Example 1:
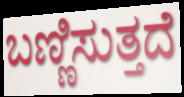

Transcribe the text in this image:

ಬಣ್ಣಿಸುತ್ತದೆ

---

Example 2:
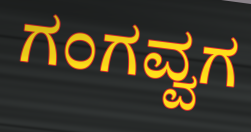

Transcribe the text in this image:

ಗಂಗವ್ವಗ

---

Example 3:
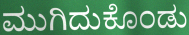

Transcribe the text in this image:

ಮುಗಿದುಕೊಂಡು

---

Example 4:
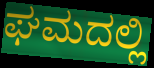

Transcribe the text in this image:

ಘಮದಲ್ಲಿ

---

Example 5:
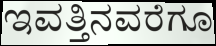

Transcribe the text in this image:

ಇವತ್ತಿನವರೆಗೂ